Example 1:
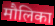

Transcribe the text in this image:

मौलिका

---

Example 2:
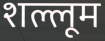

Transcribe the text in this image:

शल्लूम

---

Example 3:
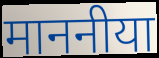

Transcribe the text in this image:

माननीया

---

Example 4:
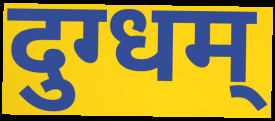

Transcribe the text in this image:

दुग्धम्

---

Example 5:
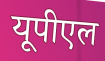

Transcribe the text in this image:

यूपीएल